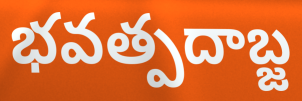
భవత్పదాబ్జ